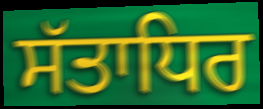
ਸੱਤਾਧਿਰ